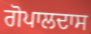
ਗੋਪਾਲਦਾਸ